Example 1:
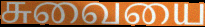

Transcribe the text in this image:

சுவையை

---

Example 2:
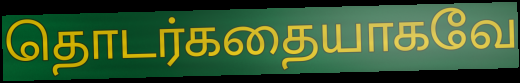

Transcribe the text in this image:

தொடர்கதையாகவே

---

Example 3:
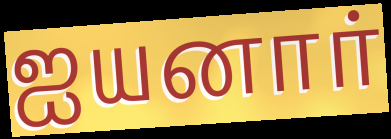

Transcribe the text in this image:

ஐயனார்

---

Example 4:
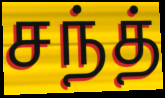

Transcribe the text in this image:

சந்த்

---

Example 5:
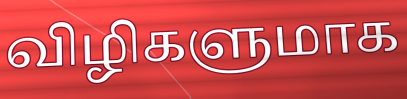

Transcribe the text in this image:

விழிகளுமாக